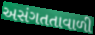
અસંગતતાવાળી